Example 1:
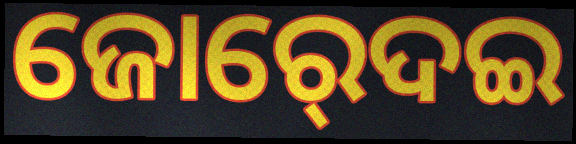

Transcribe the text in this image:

ଜୋର୍‍ଦେଇ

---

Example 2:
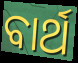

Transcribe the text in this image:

ବାର୍ଥ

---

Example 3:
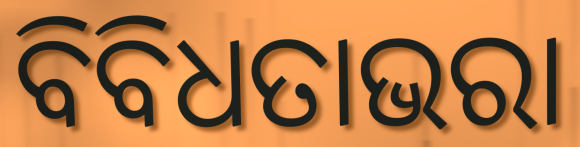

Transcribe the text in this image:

ବିବିଧତାଭରା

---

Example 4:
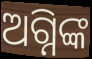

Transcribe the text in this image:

ଅଗ୍ନିଙ୍କ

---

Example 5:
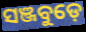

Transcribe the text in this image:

ସଞ୍ଜବୁଡ଼େ